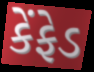
કેંફેડ